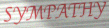
SYMPATHY